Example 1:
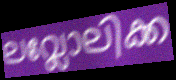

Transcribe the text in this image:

ലവ്ലോലിക്ക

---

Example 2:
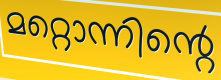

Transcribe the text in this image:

മറ്റൊന്നിന്റെ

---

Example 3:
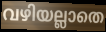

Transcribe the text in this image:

വഴിയല്ലാതെ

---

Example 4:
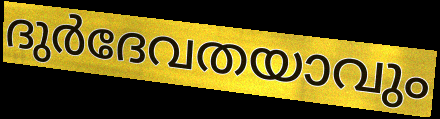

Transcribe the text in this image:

ദുർദേവതയാവും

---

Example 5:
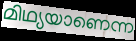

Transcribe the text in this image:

മിഥ്യയാണെന്ന